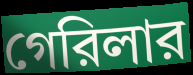
গেরিলার